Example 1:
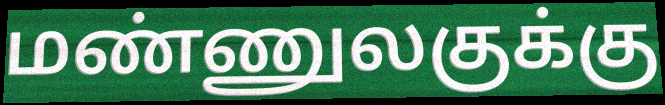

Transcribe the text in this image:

மண்ணுலகுக்கு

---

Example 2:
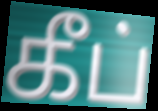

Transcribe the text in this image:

கீப்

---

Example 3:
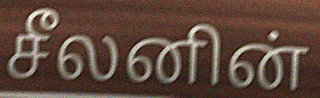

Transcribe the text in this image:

சீலனின்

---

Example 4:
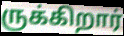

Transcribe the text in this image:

ருக்கிறார்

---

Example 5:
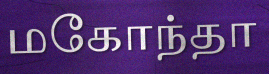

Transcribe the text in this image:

மகோந்தா